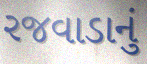
રજવાડાનું